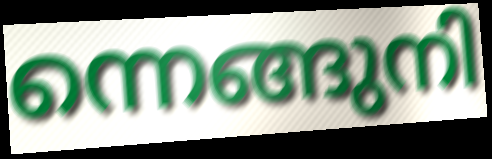
ന്നെങ്ങുനി